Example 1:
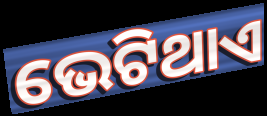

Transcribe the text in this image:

ଭେଟିଥାଏ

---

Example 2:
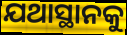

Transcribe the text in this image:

ଯଥାସ୍ଥାନକୁ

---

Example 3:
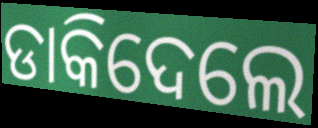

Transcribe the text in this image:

ଡାକିଦେଲେ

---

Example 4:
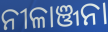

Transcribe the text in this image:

ନୀଳାଞ୍ଜନା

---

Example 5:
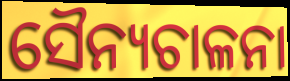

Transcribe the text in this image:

ସୈନ୍ୟଚାଳନା